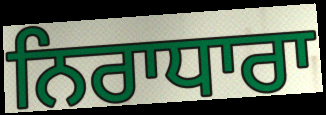
ਨਿਰਾਧਾਰਾ